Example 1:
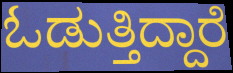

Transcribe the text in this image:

ಓಡುತ್ತಿದ್ದಾರೆ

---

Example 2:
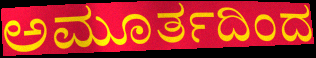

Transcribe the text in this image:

ಅಮೂರ್ತದಿಂದ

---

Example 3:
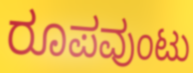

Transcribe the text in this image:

ರೂಪವುಂಟು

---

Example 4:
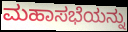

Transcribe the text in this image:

ಮಹಾಸಭೆಯನ್ನು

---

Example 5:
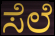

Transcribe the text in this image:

ಸೆಲೆ